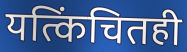
यत्किंचितही